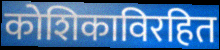
कोशिकाविरहित